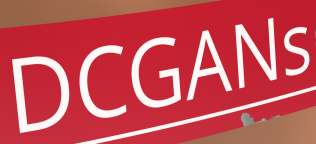
DCGANs